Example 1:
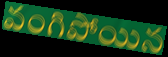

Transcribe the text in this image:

వంగిపోయిన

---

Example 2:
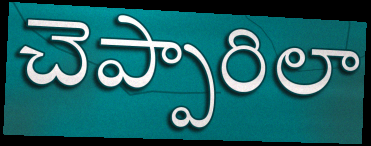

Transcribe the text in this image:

చెప్పారిలా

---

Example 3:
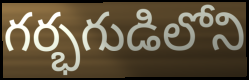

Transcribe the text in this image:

గర్భగుడిలోని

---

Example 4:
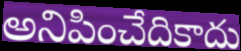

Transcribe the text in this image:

అనిపించేదికాదు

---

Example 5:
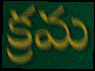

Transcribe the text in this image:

క్రమ